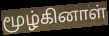
மூழ்கினாள்